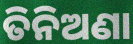
ତିନିଅଣା